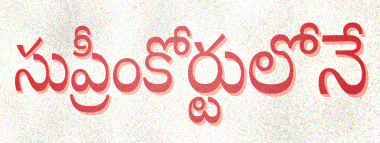
సుప్రీంకోర్టులోనే